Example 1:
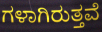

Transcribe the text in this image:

ಗಳಾಗಿರುತ್ತವೆ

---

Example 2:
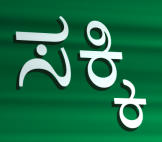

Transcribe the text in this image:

ಸಕ್ಕಿ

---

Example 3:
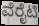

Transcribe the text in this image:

ವೆರೈಟಿ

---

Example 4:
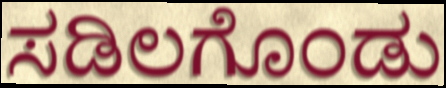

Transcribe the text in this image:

ಸಡಿಲಗೊಂಡು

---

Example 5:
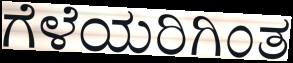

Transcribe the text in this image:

ಗೆಳೆಯರಿಗಿಂತ